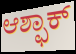
ಆಶ್ಫಾಕ್